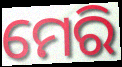
ମେରି